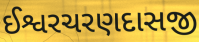
ઈશ્વરચરણદાસજી